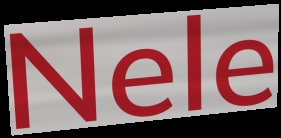
Nele